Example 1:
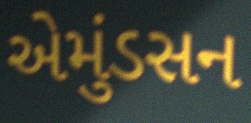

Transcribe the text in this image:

એમુંડસન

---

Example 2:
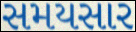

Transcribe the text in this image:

સમયસાર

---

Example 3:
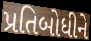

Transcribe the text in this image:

પ્રતિબોધીને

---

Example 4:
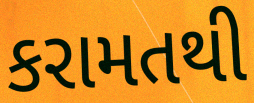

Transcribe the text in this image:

કરામતથી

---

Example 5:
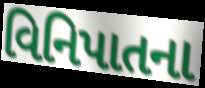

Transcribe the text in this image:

વિનિપાતના